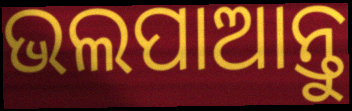
ଭଲପାଆନ୍ତୁ